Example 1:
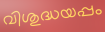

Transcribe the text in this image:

വിശുദ്ധയപ്പം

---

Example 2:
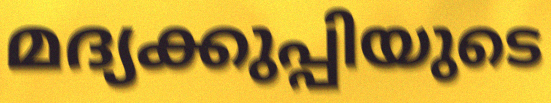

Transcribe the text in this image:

മദ്യക്കുപ്പിയുടെ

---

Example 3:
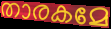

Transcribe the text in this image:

താരകമേ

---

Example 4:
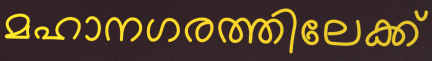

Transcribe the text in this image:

മഹാനഗരത്തിലേക്ക്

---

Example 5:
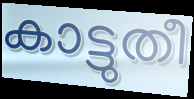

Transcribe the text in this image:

കാട്ടുതീ